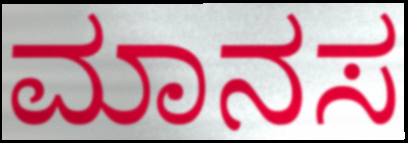
ಮಾನಸ